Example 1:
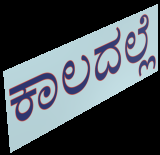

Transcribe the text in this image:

ಕಾಲದಲ್ಲೆ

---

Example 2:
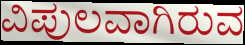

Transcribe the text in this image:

ವಿಪುಲವಾಗಿರುವ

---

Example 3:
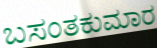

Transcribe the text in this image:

ಬಸಂತಕುಮಾರ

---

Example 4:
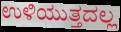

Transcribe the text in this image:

ಉಳಿಯುತ್ತದಲ್ಲ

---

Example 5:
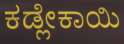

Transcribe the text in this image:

ಕಡ್ಲೇಕಾಯಿ